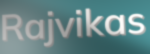
Rajvikas